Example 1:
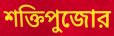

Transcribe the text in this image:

শক্তিপুজোর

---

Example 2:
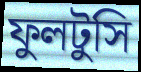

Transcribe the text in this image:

ফুলটুসি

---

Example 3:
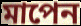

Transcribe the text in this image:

মাপেন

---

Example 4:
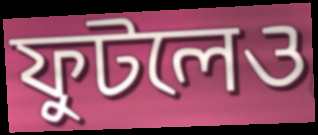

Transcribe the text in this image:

ফুটলেও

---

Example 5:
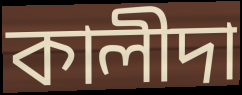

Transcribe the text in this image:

কালীদা